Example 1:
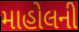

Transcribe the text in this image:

માહોલની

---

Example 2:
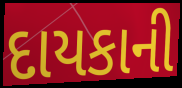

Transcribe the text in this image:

દાયકાની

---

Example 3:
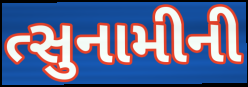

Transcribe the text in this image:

ત્સુનામીની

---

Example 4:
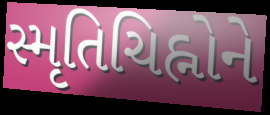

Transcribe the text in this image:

સ્મૃતિચિહ્નોને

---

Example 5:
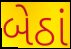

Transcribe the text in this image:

બેઠાં